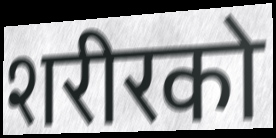
शरीरको